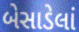
બેસાડેલાં